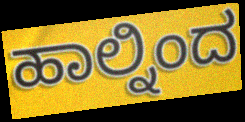
ಹಾಲ್ನಿಂದ